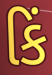
કિં